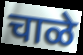
चाळे